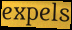
expels